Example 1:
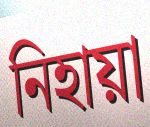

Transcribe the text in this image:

নিহায়া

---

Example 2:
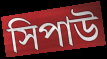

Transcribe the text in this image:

সিপাউ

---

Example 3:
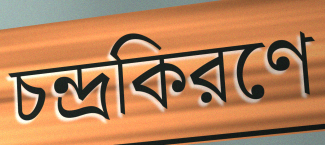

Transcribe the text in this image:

চন্দ্রকিরণে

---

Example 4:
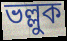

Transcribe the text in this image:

ভল্লুক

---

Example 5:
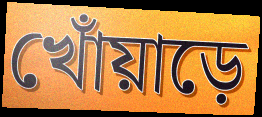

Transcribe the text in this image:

খোঁয়াড়ে